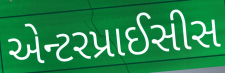
એન્ટરપ્રાઈસીસ